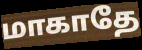
மாகாதே